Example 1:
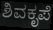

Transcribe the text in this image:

ಶಿವಕೃಪೆ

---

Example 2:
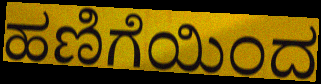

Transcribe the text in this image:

ಹಣಿಗೆಯಿಂದ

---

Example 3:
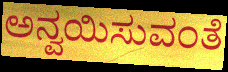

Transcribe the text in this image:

ಅನ್ವಯಿಸುವಂತೆ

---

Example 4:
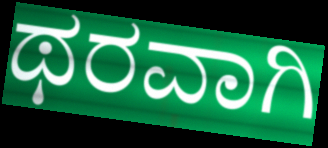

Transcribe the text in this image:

ಥರವಾಗಿ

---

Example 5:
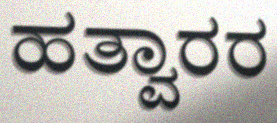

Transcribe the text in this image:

ಹತ್ವಾರರ